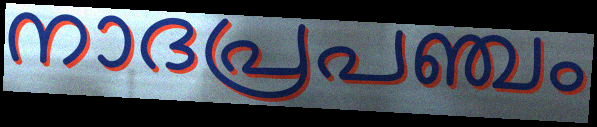
നാദപ്രപഞ്ചം